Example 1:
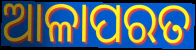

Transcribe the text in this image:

ଆଳାପରତ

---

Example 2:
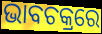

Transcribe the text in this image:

ଭାବଚକ୍ରରେ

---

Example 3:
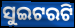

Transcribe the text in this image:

ସୁଇଟରଟି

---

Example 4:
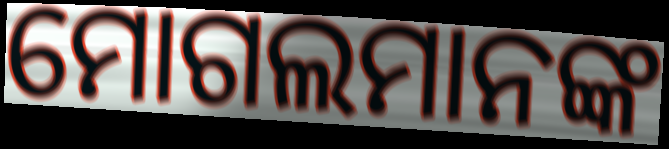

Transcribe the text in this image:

ମୋଗଲମାନଙ୍କ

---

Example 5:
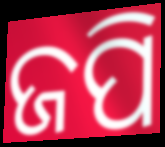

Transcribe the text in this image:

ଜପି